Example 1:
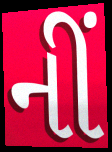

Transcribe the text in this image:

નીં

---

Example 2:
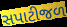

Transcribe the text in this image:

સપાટીજળ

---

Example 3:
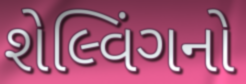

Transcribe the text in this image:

શેલ્વિંગનો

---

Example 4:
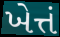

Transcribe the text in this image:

ખેત્તં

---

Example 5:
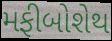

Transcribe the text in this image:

મફીબોશેથ